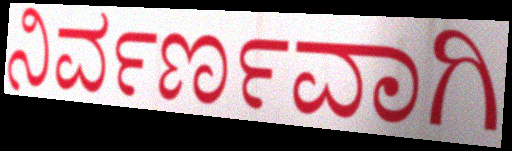
ನಿರ್ವರ್ಣವಾಗಿ